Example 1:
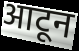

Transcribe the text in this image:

आटून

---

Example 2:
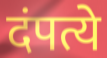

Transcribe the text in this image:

दंपत्ये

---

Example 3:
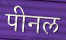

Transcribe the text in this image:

पीनल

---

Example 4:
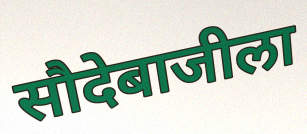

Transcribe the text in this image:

सौदेबाजीला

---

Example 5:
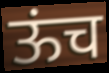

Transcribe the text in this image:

ऊंच